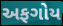
અફગોય